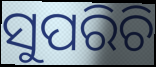
ସୁପରିଚି